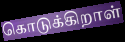
கொடுக்கிறாள்